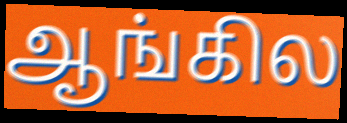
ஆங்கில